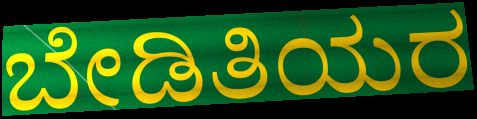
ಬೇಡಿತಿಯರ